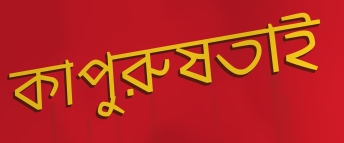
কাপুরুষতাই